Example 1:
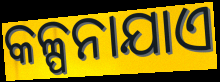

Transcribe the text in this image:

କଳ୍ପନାଯାଏ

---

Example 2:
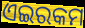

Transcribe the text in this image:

ଏଇରକମ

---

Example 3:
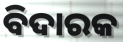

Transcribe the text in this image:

ବିଦାରକ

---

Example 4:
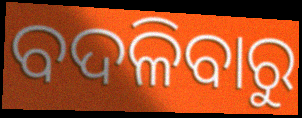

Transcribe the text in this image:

ବଦଳିବାରୁ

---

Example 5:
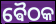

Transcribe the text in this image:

ଵୈଠକ